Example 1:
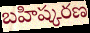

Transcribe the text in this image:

బహిష్కరణ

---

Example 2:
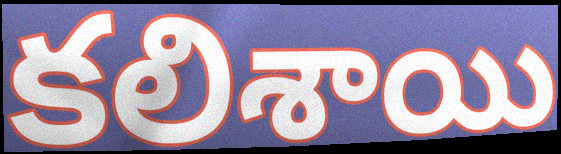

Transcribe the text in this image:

కలిశాయి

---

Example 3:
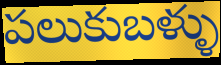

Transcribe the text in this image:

పలుకుబళ్ళు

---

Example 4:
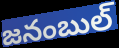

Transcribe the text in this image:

జనంబుల్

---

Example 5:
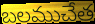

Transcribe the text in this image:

బలముచేత